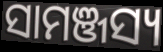
ସାମଞ୍ଜସ୍ୟ